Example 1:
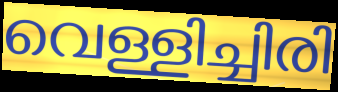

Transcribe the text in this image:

വെള്ളിച്ചിരി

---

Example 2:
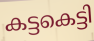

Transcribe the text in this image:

കട്ടകെട്ടി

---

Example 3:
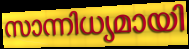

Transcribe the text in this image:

സാന്നിധ്യമായി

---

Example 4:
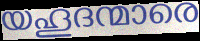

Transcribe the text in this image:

യഹൂദന്മാരെ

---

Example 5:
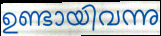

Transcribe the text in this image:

ഉണ്ടായിവന്നു